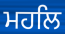
ਮਹਲਿ